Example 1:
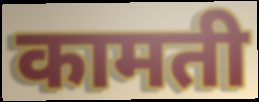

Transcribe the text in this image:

कामती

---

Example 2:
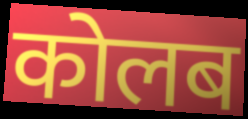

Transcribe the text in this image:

कोलब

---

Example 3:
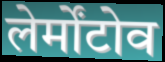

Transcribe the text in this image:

लेर्मोंटोव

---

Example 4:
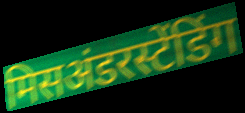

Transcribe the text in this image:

मिसअंडरस्टेंडिंग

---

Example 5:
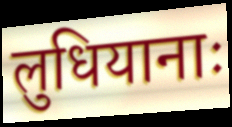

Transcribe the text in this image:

लुधियानाः